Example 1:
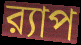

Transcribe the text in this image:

র‍্যাপ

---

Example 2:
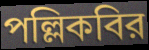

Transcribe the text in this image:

পল্লিকবির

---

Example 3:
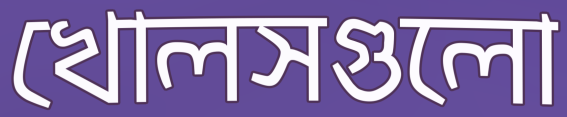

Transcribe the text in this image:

খোলসগুলো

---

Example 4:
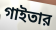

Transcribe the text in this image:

গাইতার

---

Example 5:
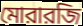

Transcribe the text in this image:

মোরারজি